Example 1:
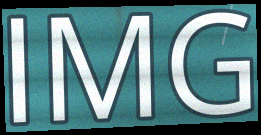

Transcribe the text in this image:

IMG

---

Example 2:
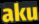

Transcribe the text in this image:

aku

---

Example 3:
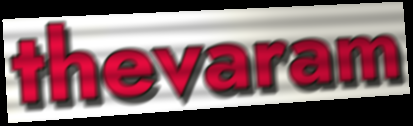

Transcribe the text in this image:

thevaram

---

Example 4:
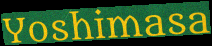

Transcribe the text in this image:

Yoshimasa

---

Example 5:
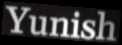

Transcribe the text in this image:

Yunish